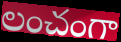
లంచంగా